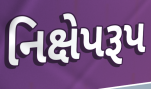
નિક્ષેપરૂપ